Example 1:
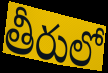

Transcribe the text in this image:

తీరులో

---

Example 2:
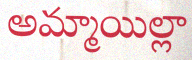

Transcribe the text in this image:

అమ్మాయిల్లా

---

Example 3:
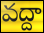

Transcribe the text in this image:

వద్దా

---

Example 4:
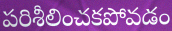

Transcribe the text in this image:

పరిశీలించకపోవడం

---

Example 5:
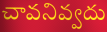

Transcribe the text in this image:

చావనివ్వదు